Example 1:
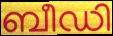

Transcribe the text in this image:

ബീഡി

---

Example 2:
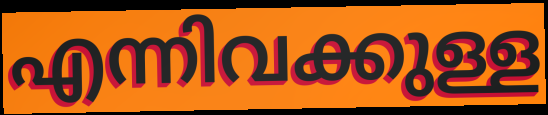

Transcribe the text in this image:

എന്നിവക്കുള്ള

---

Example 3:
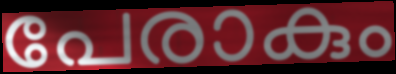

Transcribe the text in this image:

പേരാകും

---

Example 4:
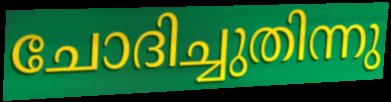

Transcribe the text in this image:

ചോദിച്ചുതിന്നു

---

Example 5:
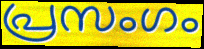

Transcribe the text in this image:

പ്രസംഗം